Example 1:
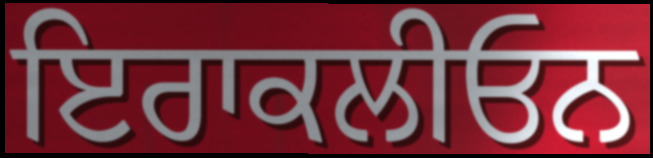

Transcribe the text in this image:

ਇਰਾਕਲੀਓਨ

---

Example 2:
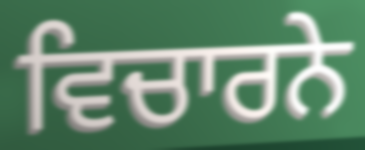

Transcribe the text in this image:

ਵਿਚਾਰਨੇ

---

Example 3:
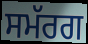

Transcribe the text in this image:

ਸਮੱਰਗ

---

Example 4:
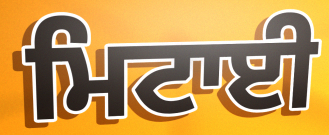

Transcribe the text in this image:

ਮਿਟਾਈ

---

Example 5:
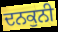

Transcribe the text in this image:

ਦਨਕੁਨੀ